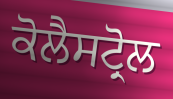
ਕੋਲੈਸਟ੍ਰੋਲ